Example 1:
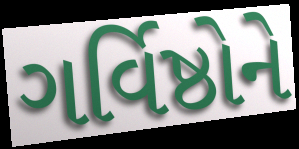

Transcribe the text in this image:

ગર્વિષ્ઠોને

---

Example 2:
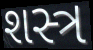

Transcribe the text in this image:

શસ્ત્ર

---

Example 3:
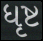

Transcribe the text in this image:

ધૃષ્ટ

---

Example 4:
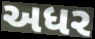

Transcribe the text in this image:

અધર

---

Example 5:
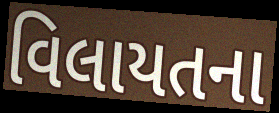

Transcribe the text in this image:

વિલાયતના